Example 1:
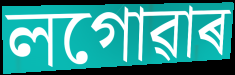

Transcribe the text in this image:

লগোৱাৰ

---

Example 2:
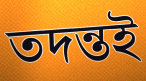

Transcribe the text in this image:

তদন্তই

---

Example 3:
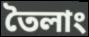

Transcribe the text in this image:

তৈলাং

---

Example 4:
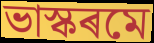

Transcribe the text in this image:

ভাস্কৰমে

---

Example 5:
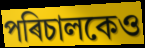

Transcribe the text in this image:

পৰিচালকেও